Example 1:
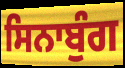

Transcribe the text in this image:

ਸਿਨਾਬੁੰਗ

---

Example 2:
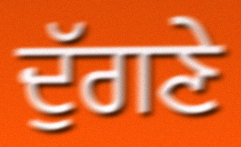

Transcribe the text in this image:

ਦੁੱਗਣੇ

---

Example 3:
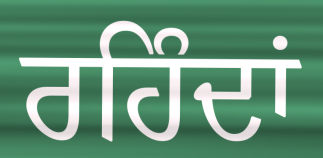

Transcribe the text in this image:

ਰਹਿੰਦਾਂ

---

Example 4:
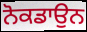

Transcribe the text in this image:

ਨੋਕਡਾਉਨ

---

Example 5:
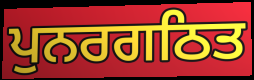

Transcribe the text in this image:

ਪੁਨਰਗਠਿਤ